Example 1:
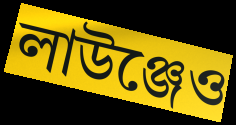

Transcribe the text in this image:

লাউঞ্জেও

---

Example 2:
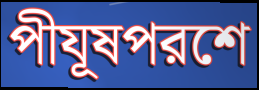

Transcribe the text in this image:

পীযূষপরশে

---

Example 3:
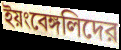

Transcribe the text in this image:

ইয়ংবেঙ্গলিদের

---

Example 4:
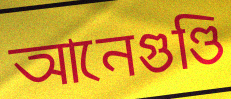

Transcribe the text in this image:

আনেগুণ্ডি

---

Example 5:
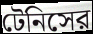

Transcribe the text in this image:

টেনিসের